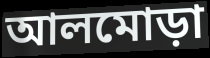
আলমোড়া